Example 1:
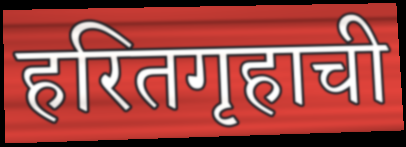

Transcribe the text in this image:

हरितगृहाची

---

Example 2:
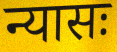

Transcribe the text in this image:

न्यासः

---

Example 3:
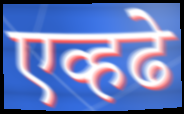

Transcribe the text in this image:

एव्हढे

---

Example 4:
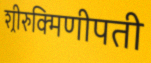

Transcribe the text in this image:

श्रीरुक्मिणीपती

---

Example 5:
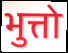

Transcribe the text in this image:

भुत्तो